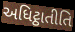
અધિટ્ઠાતીતિ